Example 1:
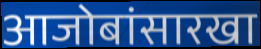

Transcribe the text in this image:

आजोबांसारखा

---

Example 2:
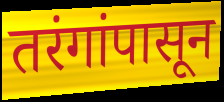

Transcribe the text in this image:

तरंगांपासून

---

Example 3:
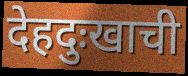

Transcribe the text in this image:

देहदुःखाची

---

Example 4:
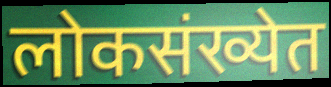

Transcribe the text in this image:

लोकसंख्येत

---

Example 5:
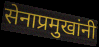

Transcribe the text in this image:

सेनाप्रमुखांनी